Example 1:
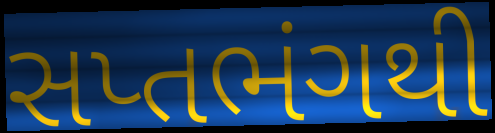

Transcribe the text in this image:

સપ્તભંગથી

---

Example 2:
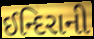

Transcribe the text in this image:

ઈન્દિરાની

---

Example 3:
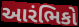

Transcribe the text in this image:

આરંભિકો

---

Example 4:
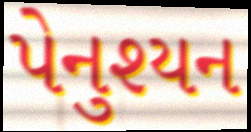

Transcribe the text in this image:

પેનુશ્યન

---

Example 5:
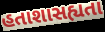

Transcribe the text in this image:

હતાશાસહ્યતા